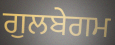
ਗੁਲਬੇਗਮ